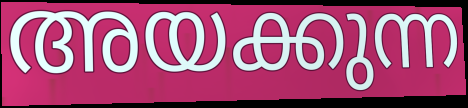
അയക്കുന്ന